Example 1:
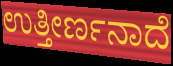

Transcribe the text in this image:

ಉತ್ತೀರ್ಣನಾದೆ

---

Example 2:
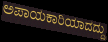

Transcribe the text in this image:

ಅಪಾಯಕಾರಿಯಾದದ್ದು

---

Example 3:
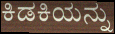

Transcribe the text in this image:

ಕಿಡಕಿಯನ್ನು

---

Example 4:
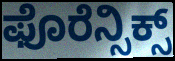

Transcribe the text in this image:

ಫೊರೆನ್ಸಿಕ್ಸ್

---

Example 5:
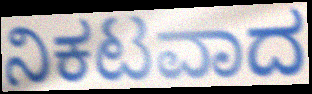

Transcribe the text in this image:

ನಿಕಟವಾದ